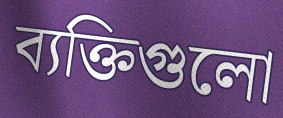
ব্যক্তিগুলো